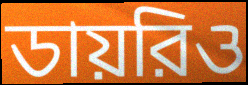
ডায়রিও